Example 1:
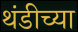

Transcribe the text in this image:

थंडीच्या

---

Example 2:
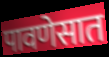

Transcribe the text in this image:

पावणेसात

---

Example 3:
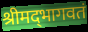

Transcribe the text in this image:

श्रीमद्‌भागवतं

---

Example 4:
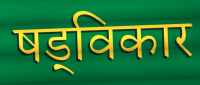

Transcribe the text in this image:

षड्‌विकार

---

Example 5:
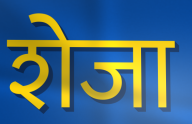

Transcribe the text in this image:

शेजा